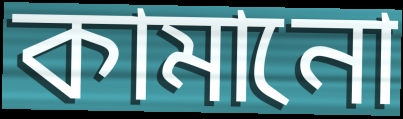
কামানো